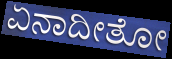
ಏನಾದೀತೋ